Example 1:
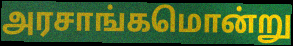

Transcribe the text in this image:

அரசாங்கமொன்று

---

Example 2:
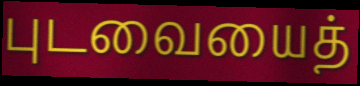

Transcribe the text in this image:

புடவையைத்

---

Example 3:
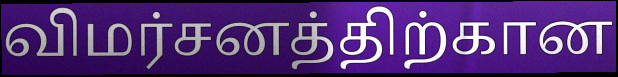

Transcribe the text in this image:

விமர்சனத்திற்கான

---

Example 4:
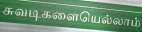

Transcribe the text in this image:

சுவடிகளையெல்லாம்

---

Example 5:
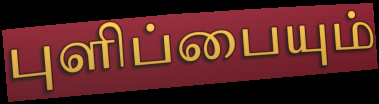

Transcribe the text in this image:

புளிப்பையும்